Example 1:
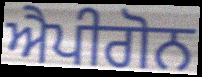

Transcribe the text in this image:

ਐਪੀਗੋਨ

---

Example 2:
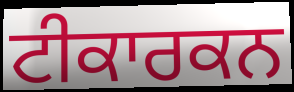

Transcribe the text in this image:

ਟੀਕਾਰਕਨ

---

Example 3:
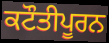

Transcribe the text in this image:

ਕਟੌਤੀਪੂਰਨ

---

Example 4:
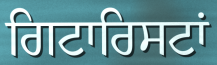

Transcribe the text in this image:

ਗਿਟਾਰਿਸਟਾਂ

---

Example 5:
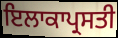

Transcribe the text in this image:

ਇਲਾਕਾਪ੍ਰਸਤੀ